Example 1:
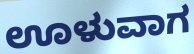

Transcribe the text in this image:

ಊಳುವಾಗ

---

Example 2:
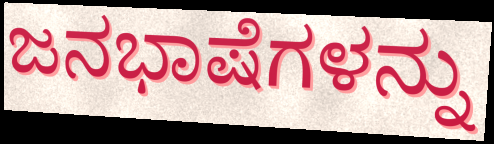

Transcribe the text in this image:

ಜನಭಾಷೆಗಳನ್ನು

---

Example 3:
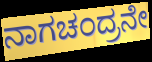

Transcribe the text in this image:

ನಾಗಚಂದ್ರನೇ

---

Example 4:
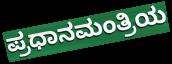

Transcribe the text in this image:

ಪ್ರಧಾನಮಂತ್ರಿಯ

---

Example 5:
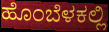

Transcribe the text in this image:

ಹೊಂಬೆಳಕಲ್ಲಿ